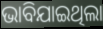
ଭାବିଯାଇଥିଲା